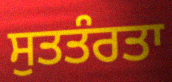
ਸੁਤਤੰਰਤਾ